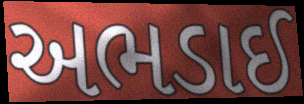
અભડાઈ